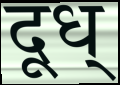
दूध्